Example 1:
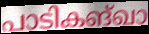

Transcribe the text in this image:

പാടികങ്ഖാ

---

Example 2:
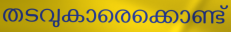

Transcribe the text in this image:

തടവുകാരെക്കൊണ്ട്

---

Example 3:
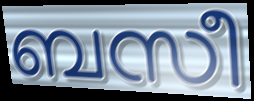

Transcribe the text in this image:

ബസീ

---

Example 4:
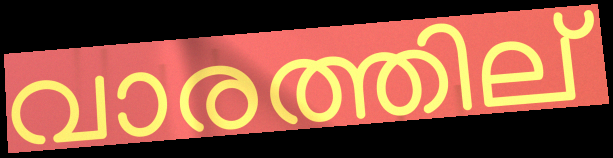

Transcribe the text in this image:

വാരത്തില്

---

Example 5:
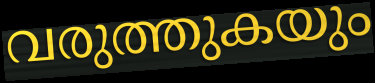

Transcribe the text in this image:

വരുത്തുകയും